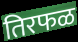
तिरफळ